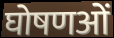
घोषणओं